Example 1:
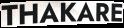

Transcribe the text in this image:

THAKARE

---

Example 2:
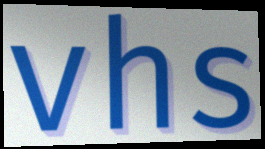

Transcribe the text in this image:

vhs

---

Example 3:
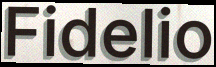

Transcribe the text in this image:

Fidelio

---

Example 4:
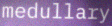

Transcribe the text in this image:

medullary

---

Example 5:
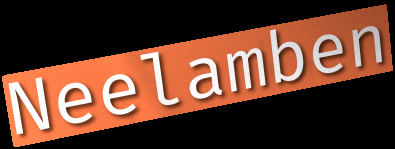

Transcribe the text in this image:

Neelamben